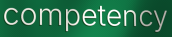
competency